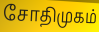
சோதிமுகம்